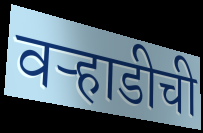
वऱ्हाडीची